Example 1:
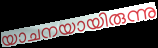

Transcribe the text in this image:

യാചനയായിരുന്നു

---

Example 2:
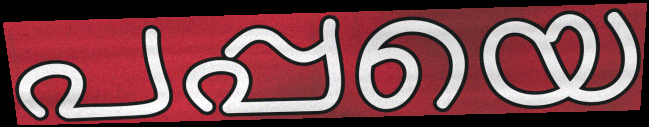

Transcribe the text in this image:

പപ്പയെ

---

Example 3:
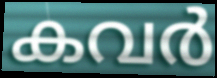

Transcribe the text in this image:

കവർ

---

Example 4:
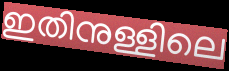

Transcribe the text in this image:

ഇതിനുള്ളിലെ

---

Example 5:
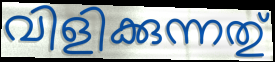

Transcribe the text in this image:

വിളിക്കുന്നതു്